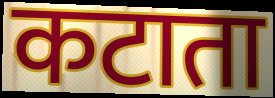
कटाता